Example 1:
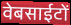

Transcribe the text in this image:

वेबसाईटों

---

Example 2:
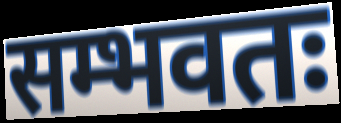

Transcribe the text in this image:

सम्भवतः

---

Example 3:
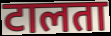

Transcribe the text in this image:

टालता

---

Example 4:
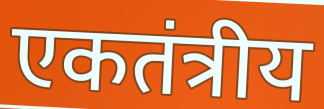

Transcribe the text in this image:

एकतंत्रीय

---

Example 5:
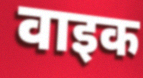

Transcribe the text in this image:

वाइक